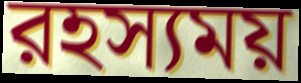
রহস্যময়